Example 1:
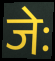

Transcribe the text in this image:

जेः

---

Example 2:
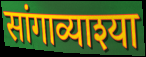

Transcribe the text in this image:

सांगाव्याश्या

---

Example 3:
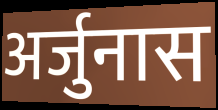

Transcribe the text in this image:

अर्जुनास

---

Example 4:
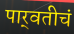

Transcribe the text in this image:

पार्वतीचं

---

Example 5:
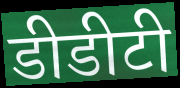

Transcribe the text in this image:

डीडीटी